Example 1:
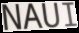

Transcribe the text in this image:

NAUI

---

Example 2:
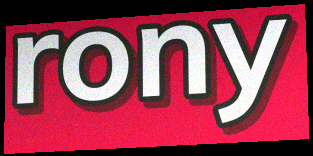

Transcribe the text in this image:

rony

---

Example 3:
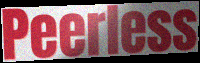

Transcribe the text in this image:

Peerless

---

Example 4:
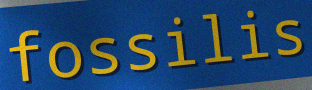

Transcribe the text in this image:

fossilis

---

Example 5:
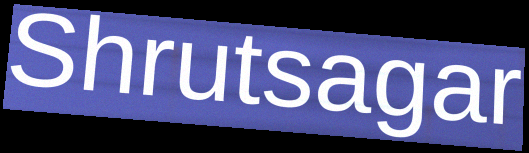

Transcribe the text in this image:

Shrutsagar